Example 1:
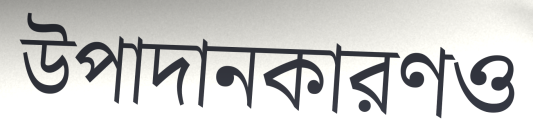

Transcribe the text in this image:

উপাদানকারণও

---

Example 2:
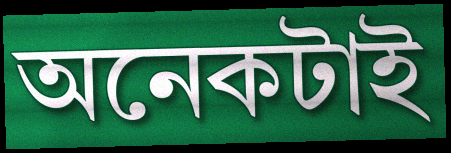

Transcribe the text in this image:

অনেকটাই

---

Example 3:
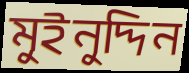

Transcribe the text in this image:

মুইনুদ্দিন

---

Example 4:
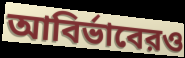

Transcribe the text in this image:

আবির্ভাবেরও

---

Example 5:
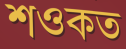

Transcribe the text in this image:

শওকত